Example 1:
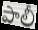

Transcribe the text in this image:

పాలీ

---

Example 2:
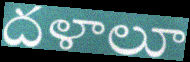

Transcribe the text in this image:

దళాలూ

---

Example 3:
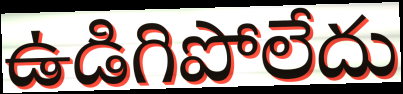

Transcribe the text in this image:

ఉడిగిపోలేదు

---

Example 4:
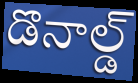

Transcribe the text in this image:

డొనాల్డ్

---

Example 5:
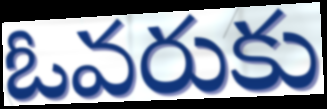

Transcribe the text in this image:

ఓవరుకు